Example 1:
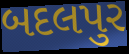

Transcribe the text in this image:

બદલપુર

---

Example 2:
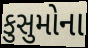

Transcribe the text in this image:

કુસુમોના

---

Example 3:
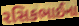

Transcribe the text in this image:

રસિકભાઈના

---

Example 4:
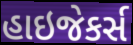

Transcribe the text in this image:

હાઇજેકર્સ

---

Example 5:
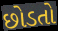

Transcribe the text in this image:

છોડતો